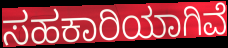
ಸಹಕಾರಿಯಾಗಿವೆ